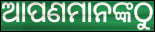
ଆପଣମାନଙ୍କଠୁ